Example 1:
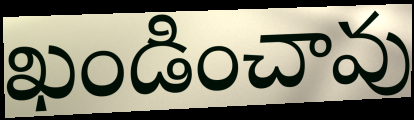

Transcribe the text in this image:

ఖండించావు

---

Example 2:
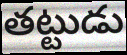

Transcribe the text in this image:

తట్టుడు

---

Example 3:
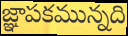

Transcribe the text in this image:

జ్ఞాపకమున్నది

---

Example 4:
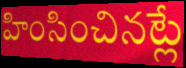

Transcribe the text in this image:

హింసించినట్లే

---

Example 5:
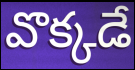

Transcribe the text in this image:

వొక్కడే